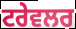
ਟਰੇਵਲਰ